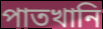
পাতখানি